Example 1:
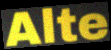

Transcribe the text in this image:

Alte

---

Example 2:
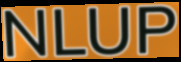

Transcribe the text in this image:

NLUP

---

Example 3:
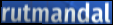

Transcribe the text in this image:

rutmandal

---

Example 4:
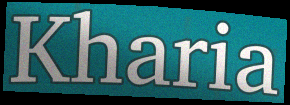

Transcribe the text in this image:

Kharia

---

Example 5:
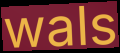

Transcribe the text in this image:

wals